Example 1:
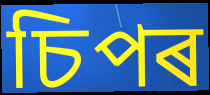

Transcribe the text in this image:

চিপৰ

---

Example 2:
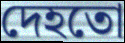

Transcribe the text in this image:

দেহতো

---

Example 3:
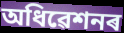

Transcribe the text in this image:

অধিৱেশনৰ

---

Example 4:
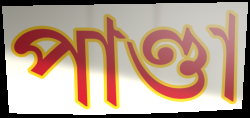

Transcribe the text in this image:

পাণ্ডা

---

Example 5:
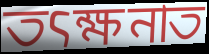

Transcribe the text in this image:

তৎক্ষনাত